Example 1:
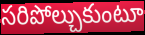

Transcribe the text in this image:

సరిపోల్చుకుంటూ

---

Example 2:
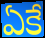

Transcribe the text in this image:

ఏకే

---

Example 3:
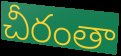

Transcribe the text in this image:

చీరంతా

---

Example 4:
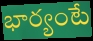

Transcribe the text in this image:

భార్యంటే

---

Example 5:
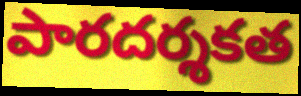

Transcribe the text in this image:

పారదర్శకత